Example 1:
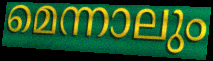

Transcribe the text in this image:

മെന്നാലും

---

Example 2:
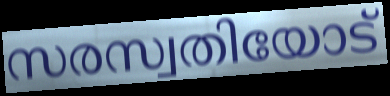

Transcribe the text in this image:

സരസ്വതിയോട്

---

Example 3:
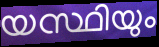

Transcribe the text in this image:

യസ്ഥിയും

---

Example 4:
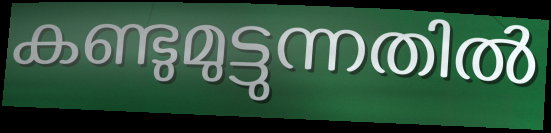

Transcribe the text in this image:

കണ്ടുമുട്ടുന്നതിൽ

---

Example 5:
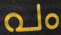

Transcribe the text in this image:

പം